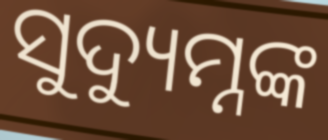
ସୁଦ୍ୟୁମ୍ନଙ୍କ